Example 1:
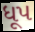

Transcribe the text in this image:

ધૂપ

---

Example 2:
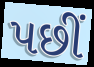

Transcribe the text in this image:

પછીં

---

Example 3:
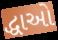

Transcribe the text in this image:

દ્ધાઓ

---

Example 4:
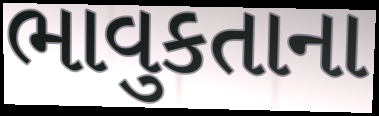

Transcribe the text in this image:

ભાવુકતાના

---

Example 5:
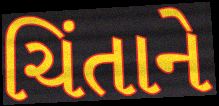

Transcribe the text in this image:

ચિંતાને